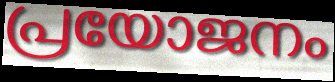
പ്രയോജനം